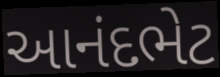
આનંદભેટ